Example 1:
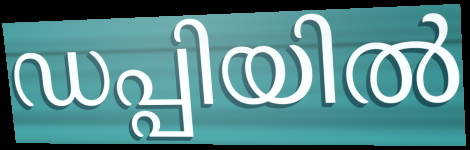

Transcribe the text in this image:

ഡപ്പിയിൽ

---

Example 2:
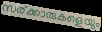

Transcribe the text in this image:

സര്ക്കാരുകളെയും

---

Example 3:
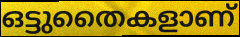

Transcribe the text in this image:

ഒട്ടുതൈകളാണ്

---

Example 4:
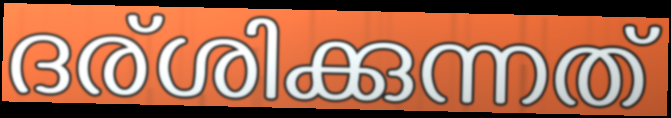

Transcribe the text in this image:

ദര്ശിക്കുന്നത്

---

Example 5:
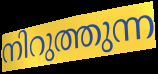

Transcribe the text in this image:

നിറുത്തുന്ന